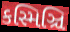
કસ્મિઞ્ચિ